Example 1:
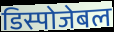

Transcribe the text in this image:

डिस्पोजेबल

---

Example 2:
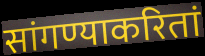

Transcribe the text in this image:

सांगण्याकरितां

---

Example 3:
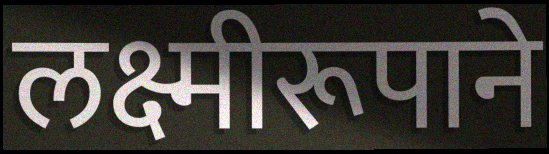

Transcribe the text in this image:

लक्ष्मीरूपाने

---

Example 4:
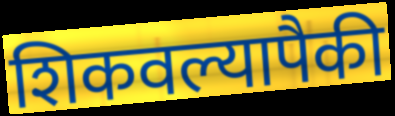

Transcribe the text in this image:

शिकवल्यापैकी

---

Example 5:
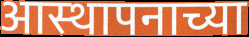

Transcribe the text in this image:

आस्थापनाच्या